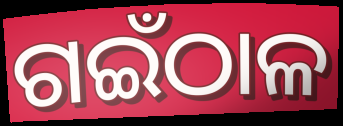
ଗଇଁଠାଳ